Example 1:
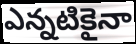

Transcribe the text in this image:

ఎన్నటికైనా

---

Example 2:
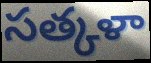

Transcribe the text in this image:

సత్కళా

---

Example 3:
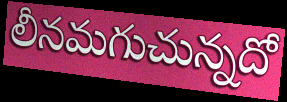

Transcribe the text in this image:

లీనమగుచున్నదో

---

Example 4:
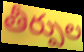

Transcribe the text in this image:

తీర్పుల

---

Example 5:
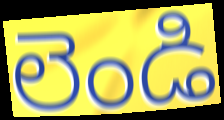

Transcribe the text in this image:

లెండి